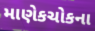
માણેકચોકના